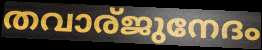
തവാര്ജുനേദം